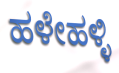
ಹಳೇಹಳ್ಳಿ